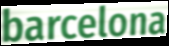
barcelona